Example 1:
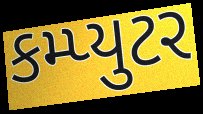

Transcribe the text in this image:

કમ્પ્યુટર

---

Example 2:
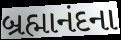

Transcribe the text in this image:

બ્રહ્માનંદના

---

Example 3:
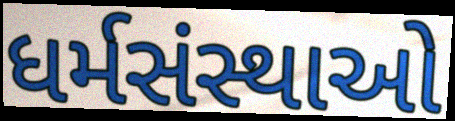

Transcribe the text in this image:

ધર્મસંસ્થાઓ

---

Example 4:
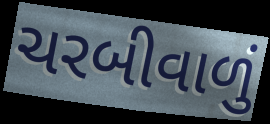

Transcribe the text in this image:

ચરબીવાળું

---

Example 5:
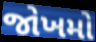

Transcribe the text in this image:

જોખમો